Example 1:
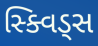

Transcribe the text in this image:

સ્ક્વિડ્સ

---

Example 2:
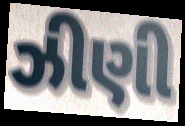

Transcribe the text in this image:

ઝીણી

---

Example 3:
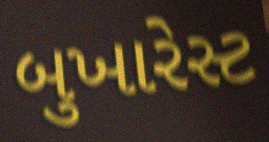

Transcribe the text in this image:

બુખારેસ્ટ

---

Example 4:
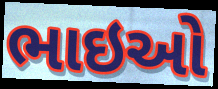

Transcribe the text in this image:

ભાઇઓ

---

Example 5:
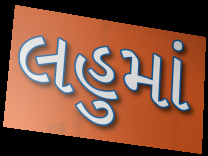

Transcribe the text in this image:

લહુમાં